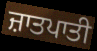
ਜ਼ਾਤਪਾਤੀ